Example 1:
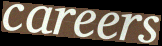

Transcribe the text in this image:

careers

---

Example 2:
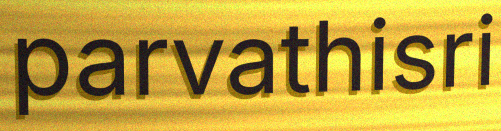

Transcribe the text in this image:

parvathisri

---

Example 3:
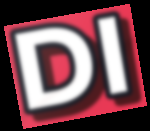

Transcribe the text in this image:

DI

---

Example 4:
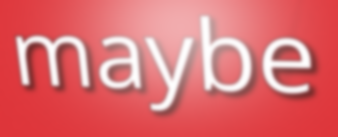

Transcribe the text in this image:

maybe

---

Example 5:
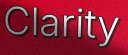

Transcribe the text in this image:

Clarity